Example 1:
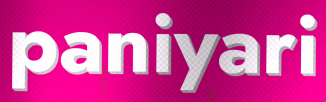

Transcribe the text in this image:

paniyari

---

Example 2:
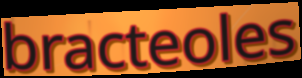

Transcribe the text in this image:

bracteoles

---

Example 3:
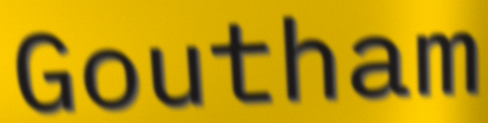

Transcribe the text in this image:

Goutham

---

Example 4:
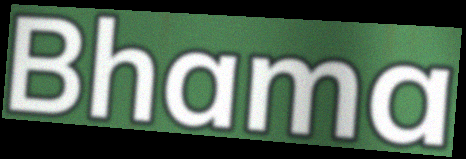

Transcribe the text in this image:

Bhama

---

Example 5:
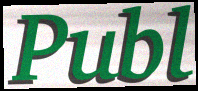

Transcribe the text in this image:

Publ